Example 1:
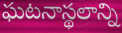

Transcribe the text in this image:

ఘటనాస్థలాన్ని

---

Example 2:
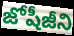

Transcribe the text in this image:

జోషీజీని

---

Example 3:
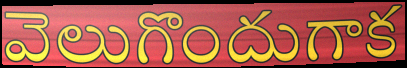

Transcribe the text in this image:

వెలుగొందుగాక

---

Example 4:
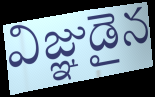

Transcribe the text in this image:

విజ్ఞుడైన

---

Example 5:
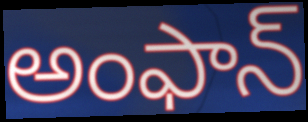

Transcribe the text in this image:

అంఫాన్